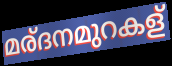
മര്ദനമുറകള്